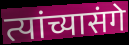
त्यांच्यासंगे